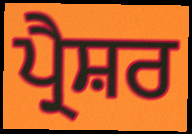
ਪ੍ਰੈਸ਼ਰ